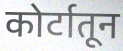
कोर्टातून